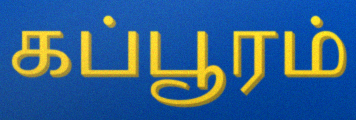
கப்பூரம்